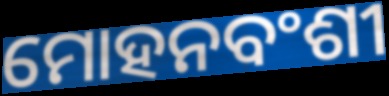
ମୋହନବଂଶୀ